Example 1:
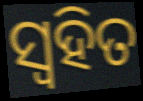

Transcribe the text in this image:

ସ୍ୱହିତ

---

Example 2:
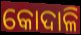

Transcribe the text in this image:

କୋଦାଳି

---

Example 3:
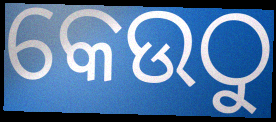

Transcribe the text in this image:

କେଉଠୁ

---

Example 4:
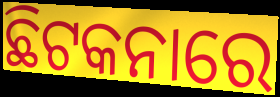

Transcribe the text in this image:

ଛିଟକନାରେ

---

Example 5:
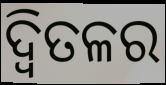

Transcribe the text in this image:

ଦ୍ୱିତଳର